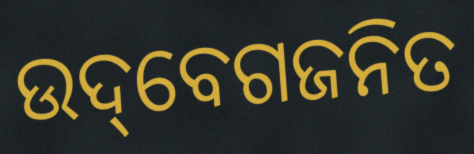
ଉଦ୍‌ବେଗଜନିତ